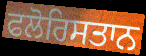
ਫਲੋਰਿਸਤਾਨ